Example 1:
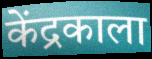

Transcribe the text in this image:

केंद्रकाला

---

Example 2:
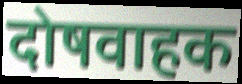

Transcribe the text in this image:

दोषवाहक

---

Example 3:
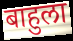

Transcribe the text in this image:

बाहुला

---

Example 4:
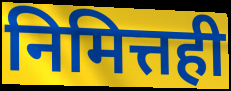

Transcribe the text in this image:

निमित्तही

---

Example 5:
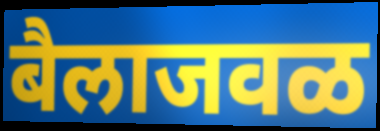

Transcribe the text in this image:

बैलाजवळ